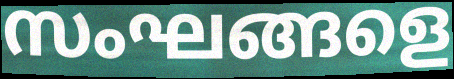
സംഘങ്ങളെ